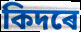
কিদৰে